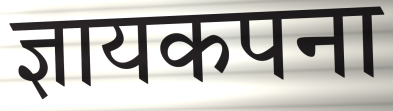
ज्ञायकपना